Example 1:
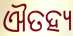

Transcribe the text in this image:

ଐତହ୍ୟ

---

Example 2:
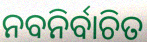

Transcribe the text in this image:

ନବନିର୍ବାଚିତ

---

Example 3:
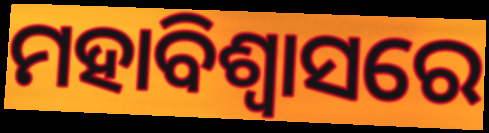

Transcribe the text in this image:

ମହାବିଶ୍ୱାସରେ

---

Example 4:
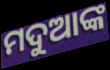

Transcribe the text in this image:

ମଦୁଆଙ୍କ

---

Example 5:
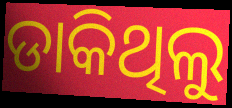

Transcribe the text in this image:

ଡାକିଥିଲୁ